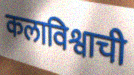
कलाविश्वाची